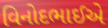
વિનોદભાઈએ